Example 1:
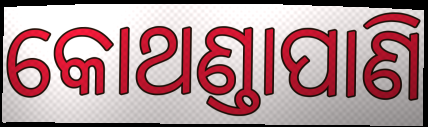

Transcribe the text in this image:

କୋଥଣ୍ଡାପାଣି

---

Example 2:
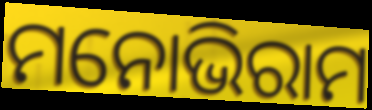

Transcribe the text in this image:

ମନୋଭିରାମ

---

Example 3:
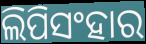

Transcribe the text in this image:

ଲିପିସଂହାର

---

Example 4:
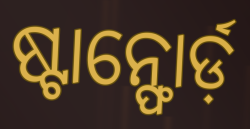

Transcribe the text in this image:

ଷ୍ଟାନ୍ଫୋର୍ଡ଼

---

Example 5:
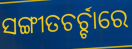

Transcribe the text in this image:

ସଙ୍ଗୀତଚର୍ଚ୍ଚାରେ